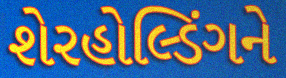
શેરહોલ્ડિંગને